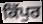
ਕਿੱਪੁਰ